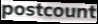
postcount